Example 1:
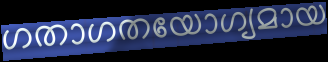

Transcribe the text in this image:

ഗതാഗതയോഗ്യമായ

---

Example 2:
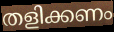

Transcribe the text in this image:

തളിക്കണം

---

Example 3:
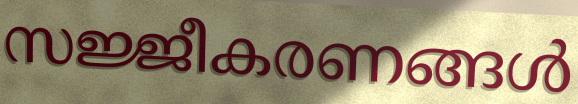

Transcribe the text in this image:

സജ്ജീകരണങ്ങൾ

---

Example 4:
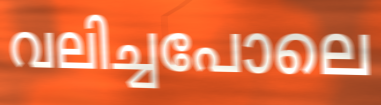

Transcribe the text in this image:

വലിച്ചപോലെ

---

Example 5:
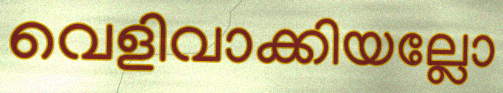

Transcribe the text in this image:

വെളിവാക്കിയല്ലോ